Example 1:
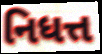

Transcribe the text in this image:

નિધત્ત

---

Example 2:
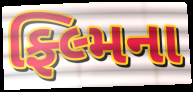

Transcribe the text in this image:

ફ્લ્મિના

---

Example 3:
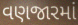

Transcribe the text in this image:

વણજારમાં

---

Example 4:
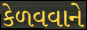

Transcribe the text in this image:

કેળવવાને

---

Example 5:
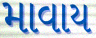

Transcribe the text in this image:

માવાય